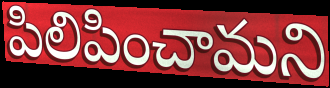
పిలిపించామని